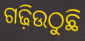
ଗଢ଼ିଉଠୁଛି